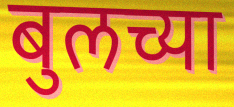
बुलच्या